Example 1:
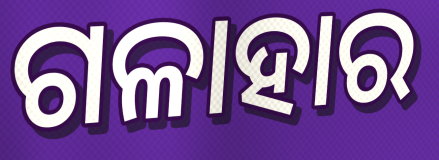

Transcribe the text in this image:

ଗଳାହାର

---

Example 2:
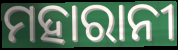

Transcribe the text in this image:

ମହାରାନୀ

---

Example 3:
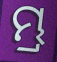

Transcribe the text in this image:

ମ୍ଭ୍ର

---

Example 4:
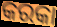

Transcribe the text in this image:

କରକା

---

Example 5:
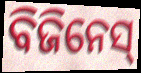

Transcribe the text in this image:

ବିଜିନେସ୍